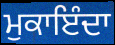
ਮੁਕਾਇੰਦਾ